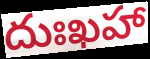
దుఃఖహా